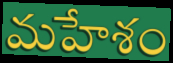
మహేశం